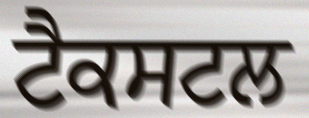
ਟੈਕਸਟਲ